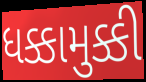
ધક્કામુક્કી